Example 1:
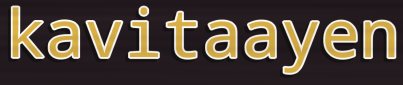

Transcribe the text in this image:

kavitaayen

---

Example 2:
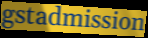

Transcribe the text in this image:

gstadmission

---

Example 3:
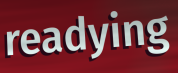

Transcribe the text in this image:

readying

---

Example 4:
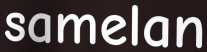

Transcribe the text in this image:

samelan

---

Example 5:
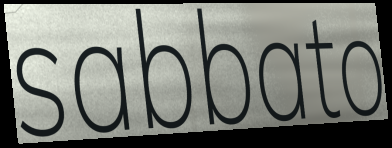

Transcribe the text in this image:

sabbato